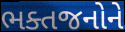
ભક્તજનોને